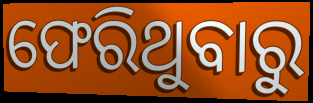
ଫେରିଥୁବାରୁ